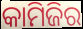
କାମିଜିର